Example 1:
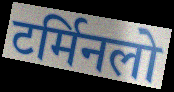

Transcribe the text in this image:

टर्मिनलो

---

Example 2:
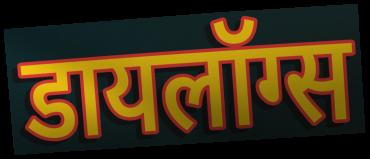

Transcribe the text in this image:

डायलॉग्स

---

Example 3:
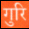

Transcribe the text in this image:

गुरि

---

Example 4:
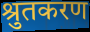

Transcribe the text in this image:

श्रुतकरण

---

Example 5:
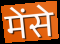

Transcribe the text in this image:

मेंसे